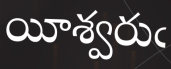
యీశ్వరుఁ